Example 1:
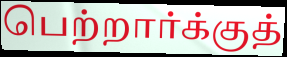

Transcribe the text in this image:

பெற்றார்க்குத்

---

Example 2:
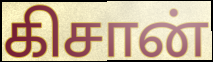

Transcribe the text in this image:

கிசான்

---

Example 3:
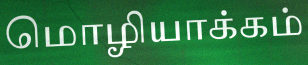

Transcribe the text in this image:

மொழியாக்கம்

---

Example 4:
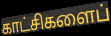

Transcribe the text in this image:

காட்சிகளைப்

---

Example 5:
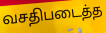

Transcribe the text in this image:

வசதிபடைத்த